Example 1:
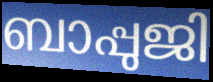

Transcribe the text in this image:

ബാപ്പുജി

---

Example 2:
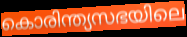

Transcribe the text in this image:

കൊരിന്ത്യസഭയിലെ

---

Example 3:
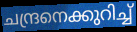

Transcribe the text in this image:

ചന്ദ്രനെക്കുറിച്ച്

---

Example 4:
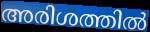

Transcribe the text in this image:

അരിശത്തിൽ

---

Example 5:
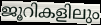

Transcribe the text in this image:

ജൂറികളിലും